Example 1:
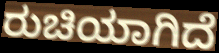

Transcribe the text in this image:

ರುಚಿಯಾಗಿದೆ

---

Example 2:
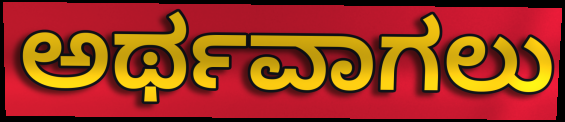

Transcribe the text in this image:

ಅರ್ಥವಾಗಲು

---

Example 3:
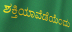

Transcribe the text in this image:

ಶಕ್ತಿಯಾವೆಡೆಯೆಂದು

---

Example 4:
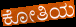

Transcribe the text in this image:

ಕೋತಿಯ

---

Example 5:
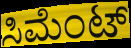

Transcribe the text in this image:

ಸಿಮೆಂಟ್